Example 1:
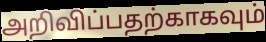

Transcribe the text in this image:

அறிவிப்பதற்காகவும்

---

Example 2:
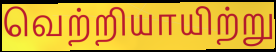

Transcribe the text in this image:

வெற்றியாயிற்று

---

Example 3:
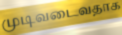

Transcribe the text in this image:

முடிவடைவதாக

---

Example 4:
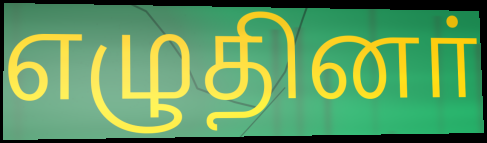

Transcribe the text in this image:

எழுதினர்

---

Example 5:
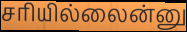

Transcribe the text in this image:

சரியில்லைன்னு